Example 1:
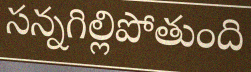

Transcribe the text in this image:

సన్నగిల్లిపోతుంది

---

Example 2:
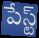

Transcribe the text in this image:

పేస్ట్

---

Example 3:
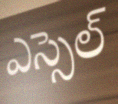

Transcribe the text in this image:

ఎస్సెల్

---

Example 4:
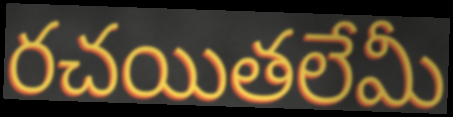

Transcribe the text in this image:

రచయితలేమీ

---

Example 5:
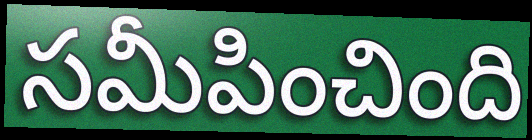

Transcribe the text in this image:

సమీపించింది